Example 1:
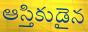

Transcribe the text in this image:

ఆస్తికుడైన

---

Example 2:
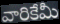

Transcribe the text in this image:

వారికేమీ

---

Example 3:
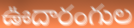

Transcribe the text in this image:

ఊదారంగుల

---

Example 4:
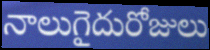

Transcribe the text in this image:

నాలుగైదురోజులు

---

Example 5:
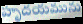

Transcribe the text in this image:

హృదయమును